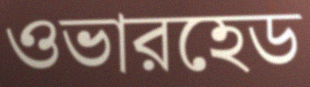
ওভারহেড